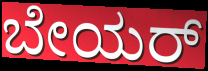
ಬೇಯರ್